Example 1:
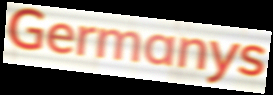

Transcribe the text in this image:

Germanys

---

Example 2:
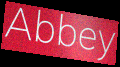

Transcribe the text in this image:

Abbey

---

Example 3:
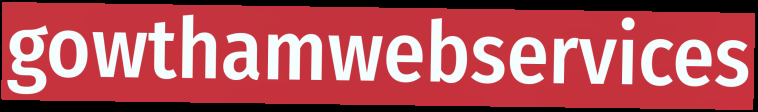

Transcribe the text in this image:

gowthamwebservices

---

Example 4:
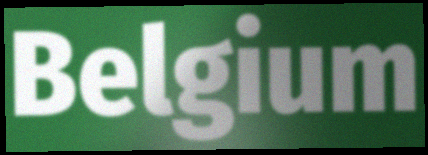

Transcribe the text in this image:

Belgium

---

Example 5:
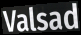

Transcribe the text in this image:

Valsad